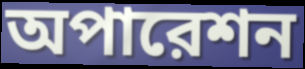
অপারেশন